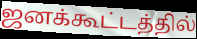
ஜனக்கூட்டத்தில்